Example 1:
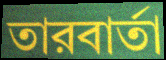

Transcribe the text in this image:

তারবার্তা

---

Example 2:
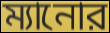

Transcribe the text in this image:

ম্যানোর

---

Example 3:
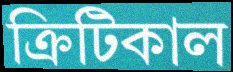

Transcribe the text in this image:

ক্রিটিকাল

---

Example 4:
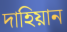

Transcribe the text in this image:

দাহিয়ান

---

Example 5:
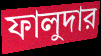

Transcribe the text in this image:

ফালুদার